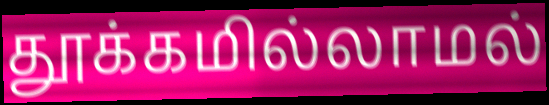
தூக்கமில்லாமல்